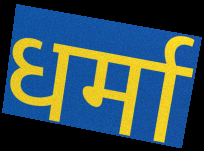
धर्मा